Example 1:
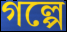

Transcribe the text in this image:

গল্পে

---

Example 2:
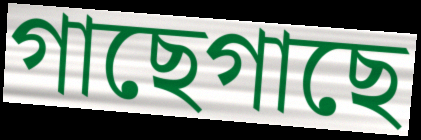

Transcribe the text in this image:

গাছেগাছে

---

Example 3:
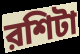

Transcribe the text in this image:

রশিটা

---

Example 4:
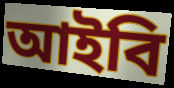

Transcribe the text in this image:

আইবি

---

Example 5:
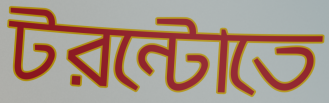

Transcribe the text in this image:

টরন্টোতে